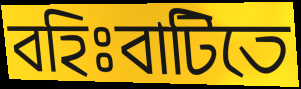
বহিঃবাটিতে